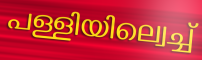
പള്ളിയില്വെച്ച്